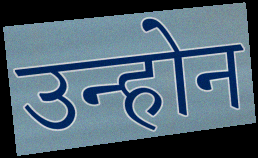
उन्होन